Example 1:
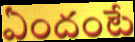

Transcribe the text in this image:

ఏందంటే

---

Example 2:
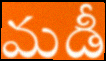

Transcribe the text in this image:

మడీ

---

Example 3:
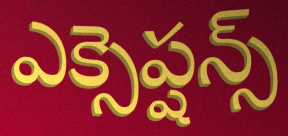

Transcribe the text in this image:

ఎక్సెప్షన్స్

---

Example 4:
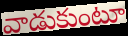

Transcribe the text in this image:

వాడుకుంటూ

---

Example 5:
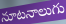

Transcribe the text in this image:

నూటనాలుగు